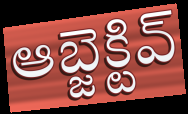
ఆబ్జెక్టివ్